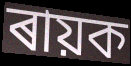
ৰায়ক